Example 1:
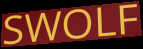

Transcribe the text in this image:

SWOLF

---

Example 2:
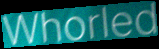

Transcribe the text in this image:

Whorled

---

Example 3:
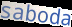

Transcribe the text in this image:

saboda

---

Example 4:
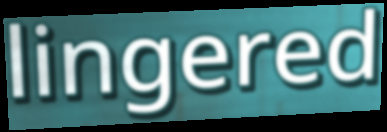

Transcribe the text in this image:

lingered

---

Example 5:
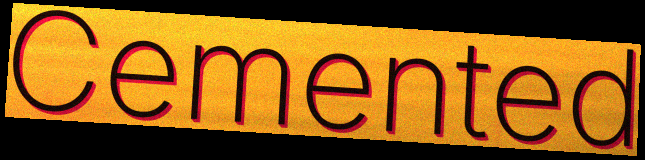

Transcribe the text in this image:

Cemented